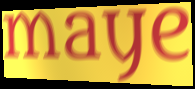
maye